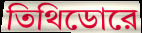
তিথিডোরে